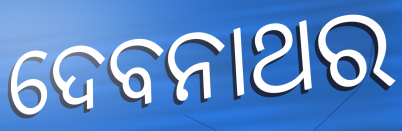
ଦେବନାଥର